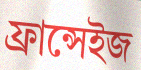
ফ্ৰান্সেইজ